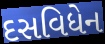
દસવિધેન